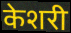
केशरी